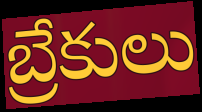
బ్రేకులు